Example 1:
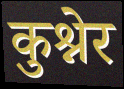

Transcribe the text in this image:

कुश्नेर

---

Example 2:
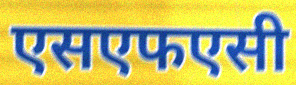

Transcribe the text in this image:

एसएफएसी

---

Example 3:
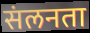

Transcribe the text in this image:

संलनता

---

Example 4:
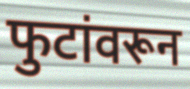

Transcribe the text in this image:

फुटांवरून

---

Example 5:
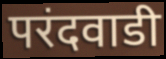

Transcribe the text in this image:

परंदवाडी